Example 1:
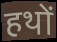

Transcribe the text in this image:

हथों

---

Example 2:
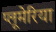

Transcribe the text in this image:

प्लूमेरिया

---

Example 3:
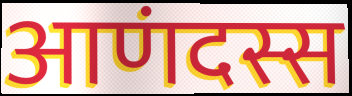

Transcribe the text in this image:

आणंदस्स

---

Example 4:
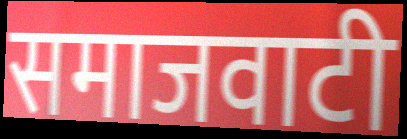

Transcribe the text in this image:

समाजवाटी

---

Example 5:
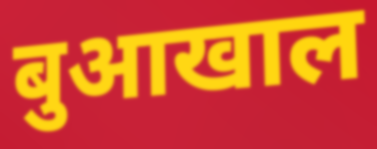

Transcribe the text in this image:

बुआखाल